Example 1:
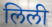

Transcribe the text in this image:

लिली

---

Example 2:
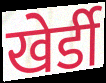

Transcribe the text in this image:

खेर्डी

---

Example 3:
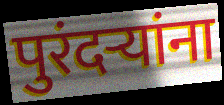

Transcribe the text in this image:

पुरंदऱ्यांना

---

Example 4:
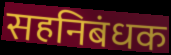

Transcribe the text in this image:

सहनिबंधक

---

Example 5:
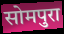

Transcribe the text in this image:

सोमपुरा